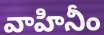
వాహినీం